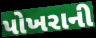
પોખરાની